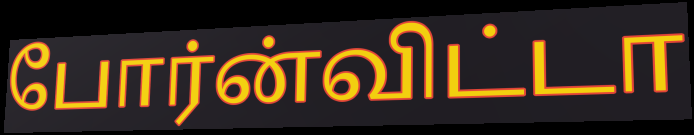
போர்ன்விட்டா